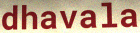
dhavala